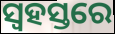
ସ୍ୱହସ୍ତରେ